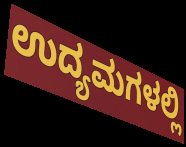
ಉದ್ಯಮಗಳಲ್ಲಿ